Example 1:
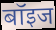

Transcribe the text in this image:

बॉइज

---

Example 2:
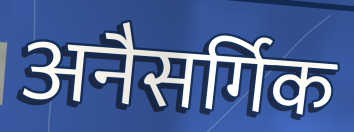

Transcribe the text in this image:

अनैसर्गिक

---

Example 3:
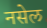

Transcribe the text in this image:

नसेल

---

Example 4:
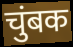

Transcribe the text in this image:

चुंबक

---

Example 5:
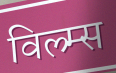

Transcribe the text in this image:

विल्म्स